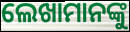
ଲେଖାମାନଙ୍କୁ